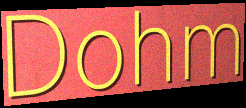
Dohm